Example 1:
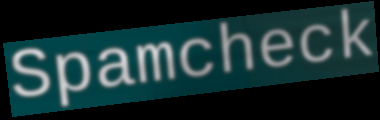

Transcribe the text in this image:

Spamcheck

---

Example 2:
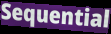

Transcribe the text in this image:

Sequential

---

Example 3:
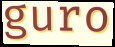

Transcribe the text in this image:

guro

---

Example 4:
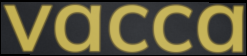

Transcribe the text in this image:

vacca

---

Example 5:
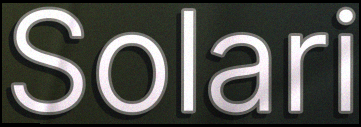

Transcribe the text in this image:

Solari